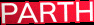
PARTH